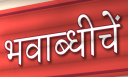
भवाब्धीचें